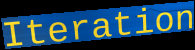
Iteration